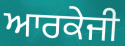
ਆਰਕੇਜੀ